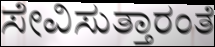
ಸೇವಿಸುತ್ತಾರಂತೆ